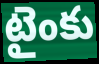
టైంకు